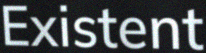
Existent